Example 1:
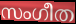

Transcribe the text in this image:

സംഗീത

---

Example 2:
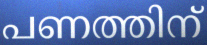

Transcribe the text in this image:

പണത്തിന്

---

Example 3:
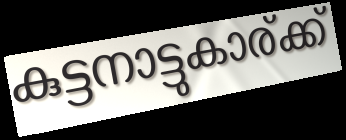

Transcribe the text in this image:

കുട്ടനാട്ടുകാര്ക്ക്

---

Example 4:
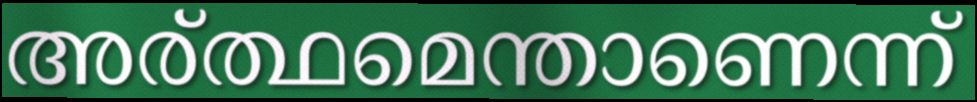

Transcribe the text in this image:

അര്ത്ഥമെന്താണെന്ന്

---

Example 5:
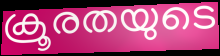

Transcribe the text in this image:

ക്രൂരതയുടെ